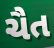
ચૈત